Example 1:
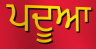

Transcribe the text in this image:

ਪਦੂਆ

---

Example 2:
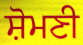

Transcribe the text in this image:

ਸ਼ੋਮਣੀ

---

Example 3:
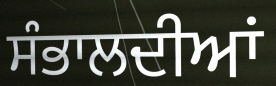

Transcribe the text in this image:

ਸੰਭਾਲਦੀਆਂ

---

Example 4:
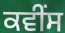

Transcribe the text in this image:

ਕਵੀਂਸ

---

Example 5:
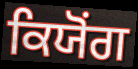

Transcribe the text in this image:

ਕਿਯੋਂਗ